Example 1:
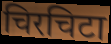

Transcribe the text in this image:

चिरचिटा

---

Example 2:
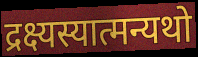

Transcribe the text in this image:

द्रक्ष्यस्यात्मन्यथो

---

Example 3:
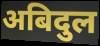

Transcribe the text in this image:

अबिदुल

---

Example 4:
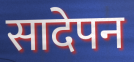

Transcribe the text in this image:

सादेपन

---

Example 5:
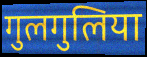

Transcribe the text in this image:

गुलगुलिया